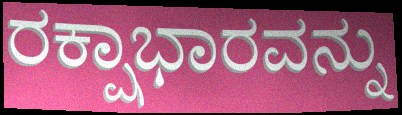
ರಕ್ಷಾಭಾರವನ್ನು